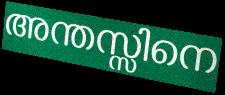
അന്തസ്സിനെ